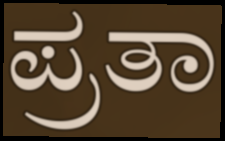
ಪ್ರತಾ